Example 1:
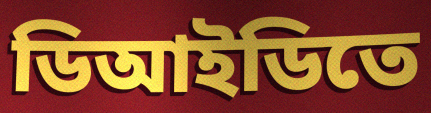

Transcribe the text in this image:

ডিআইডিতে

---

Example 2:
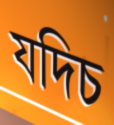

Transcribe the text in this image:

যদিচ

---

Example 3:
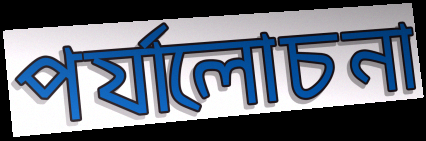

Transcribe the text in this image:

পর্যালোচনা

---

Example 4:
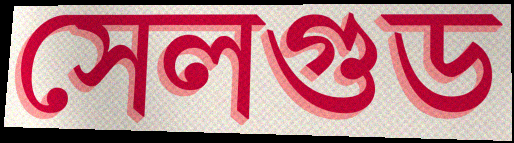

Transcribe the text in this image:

সেলগুড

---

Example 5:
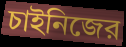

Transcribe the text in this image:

চাইনিজের